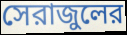
সেরাজুলের